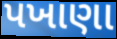
પખાણા